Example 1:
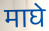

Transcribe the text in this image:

माघे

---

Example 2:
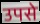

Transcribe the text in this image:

उपसे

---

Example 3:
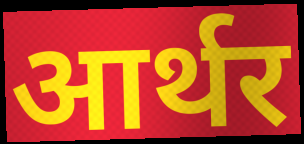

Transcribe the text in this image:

आर्थर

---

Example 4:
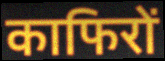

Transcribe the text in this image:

काफिरों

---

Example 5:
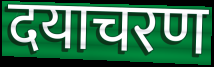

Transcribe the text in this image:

दयाचरण